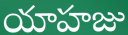
యాహజు